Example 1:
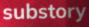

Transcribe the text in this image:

substory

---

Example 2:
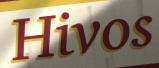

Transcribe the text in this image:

Hivos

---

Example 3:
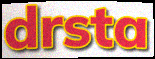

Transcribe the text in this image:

drsta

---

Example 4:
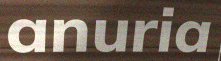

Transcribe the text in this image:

anuria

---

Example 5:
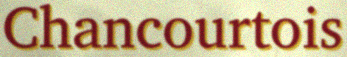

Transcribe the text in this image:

Chancourtois